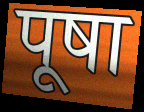
पूषा